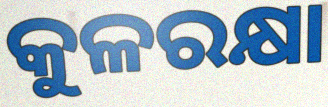
କୁଳରକ୍ଷା